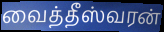
வைத்தீஸ்வரன்